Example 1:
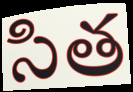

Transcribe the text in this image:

సిత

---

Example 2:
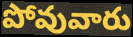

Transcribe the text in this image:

పోవువారు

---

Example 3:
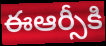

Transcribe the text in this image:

ఈఆర్సీకి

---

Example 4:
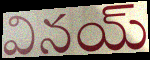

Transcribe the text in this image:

వినయ్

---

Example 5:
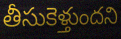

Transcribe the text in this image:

తీసుకెళ్తుందని